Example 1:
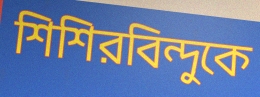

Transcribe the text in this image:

শিশিরবিন্দুকে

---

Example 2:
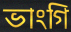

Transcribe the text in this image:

ভাংগি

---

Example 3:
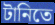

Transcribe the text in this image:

টানিতে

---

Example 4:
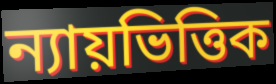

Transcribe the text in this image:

ন্যায়ভিত্তিক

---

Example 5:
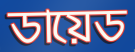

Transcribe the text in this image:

ডায়েড